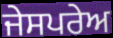
ਜੇਸਪਰੇਅ